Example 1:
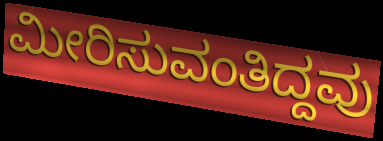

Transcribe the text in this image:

ಮೀರಿಸುವಂತಿದ್ದವು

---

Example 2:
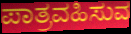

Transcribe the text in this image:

ಪಾತ್ರವಹಿಸುವ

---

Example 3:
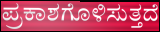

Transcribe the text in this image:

ಪ್ರಕಾಶಗೊಳಿಸುತ್ತದೆ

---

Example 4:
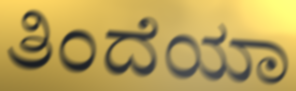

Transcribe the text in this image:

ತಿಂದೆಯಾ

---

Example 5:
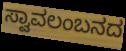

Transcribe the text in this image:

ಸ್ವಾವಲಂಬನದ